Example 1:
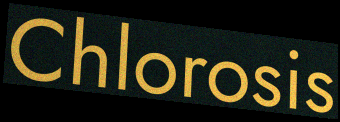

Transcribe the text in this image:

Chlorosis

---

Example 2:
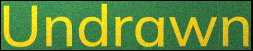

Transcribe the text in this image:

Undrawn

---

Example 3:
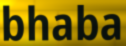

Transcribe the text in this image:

bhaba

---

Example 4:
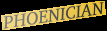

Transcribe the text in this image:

PHOENICIAN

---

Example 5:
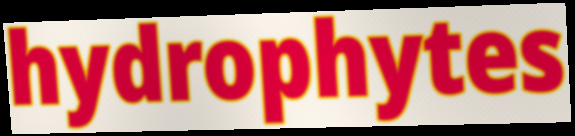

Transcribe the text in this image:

hydrophytes